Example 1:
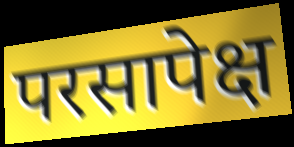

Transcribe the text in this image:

परसापेक्ष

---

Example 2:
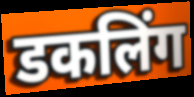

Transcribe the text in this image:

डकलिंग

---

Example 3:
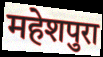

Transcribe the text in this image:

महेशपुरा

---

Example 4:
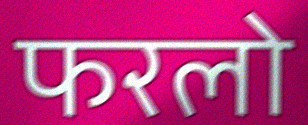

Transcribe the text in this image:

फरलो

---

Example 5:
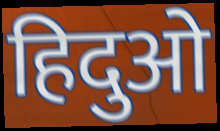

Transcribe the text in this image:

हिदुओ